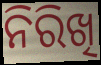
ନିରିଖି